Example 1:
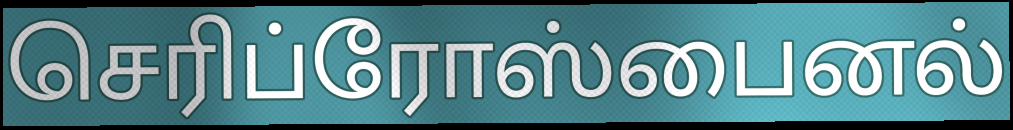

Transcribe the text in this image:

செரிப்ரோஸ்பைனல்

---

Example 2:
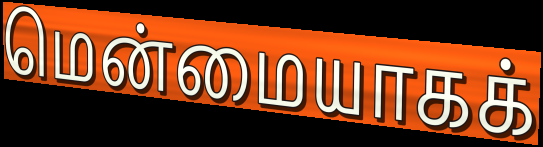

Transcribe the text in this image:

மென்மையாகக்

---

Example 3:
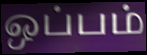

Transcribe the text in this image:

ஒப்பம்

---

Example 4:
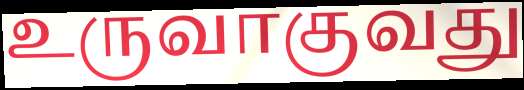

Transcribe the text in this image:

உருவாகுவது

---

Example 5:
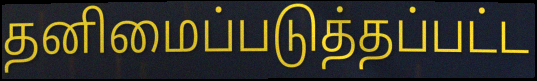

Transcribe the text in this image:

தனிமைப்படுத்தப்பட்ட